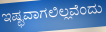
ಇಷ್ಟವಾಗಲಿಲ್ಲವೆಂದು